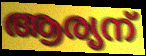
ആര്യന്